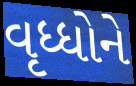
વૃધ્ધોને